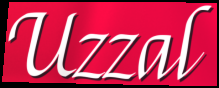
Uzzal